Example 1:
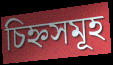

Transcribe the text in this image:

চিহ্নসমূহ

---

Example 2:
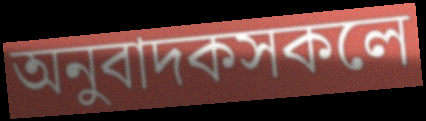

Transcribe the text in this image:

অনুবাদকসকলে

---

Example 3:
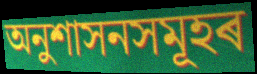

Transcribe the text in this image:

অনুশাসনসমূহৰ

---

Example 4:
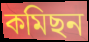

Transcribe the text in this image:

কমিছন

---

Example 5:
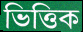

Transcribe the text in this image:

ভিত্তিক